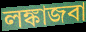
লঙ্কাজবা